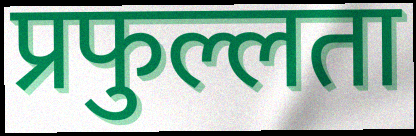
प्रफुल्लता